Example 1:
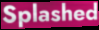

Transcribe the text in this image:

Splashed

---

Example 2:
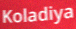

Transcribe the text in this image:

Koladiya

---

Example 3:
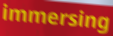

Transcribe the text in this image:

immersing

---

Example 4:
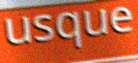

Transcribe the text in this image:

usque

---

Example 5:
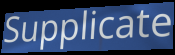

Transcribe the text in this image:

Supplicate